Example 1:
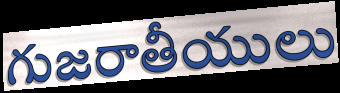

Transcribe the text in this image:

గుజరాతీయులు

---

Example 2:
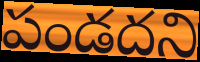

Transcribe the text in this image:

పండదని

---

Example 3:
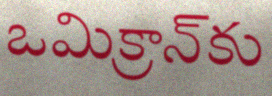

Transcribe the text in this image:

ఒమిక్రాన్‌కు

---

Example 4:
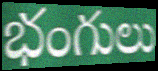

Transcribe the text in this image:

భంగులు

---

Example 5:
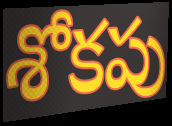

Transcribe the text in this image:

శోకపు